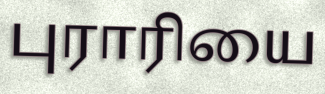
புராரியை